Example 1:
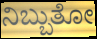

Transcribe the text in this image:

ನಿಬ್ಬುತೋ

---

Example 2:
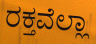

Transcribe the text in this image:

ರಕ್ತವೆಲ್ಲಾ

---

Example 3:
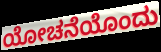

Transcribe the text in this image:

ಯೋಚನೆಯೊಂದು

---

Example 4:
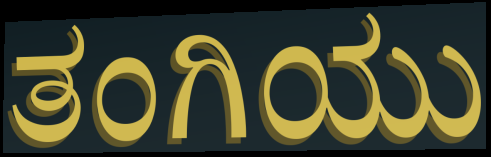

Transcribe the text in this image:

ತಂಗಿಯು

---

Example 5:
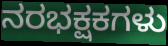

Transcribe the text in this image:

ನರಭಕ್ಷಕಗಳು